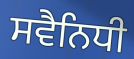
ਸਵੈਨਿਧੀ